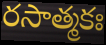
రసాత్మకః